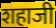
शहाजी